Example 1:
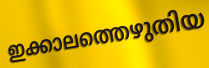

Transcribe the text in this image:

ഇക്കാലത്തെഴുതിയ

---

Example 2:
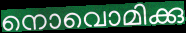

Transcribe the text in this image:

നൊവൊമിക്കു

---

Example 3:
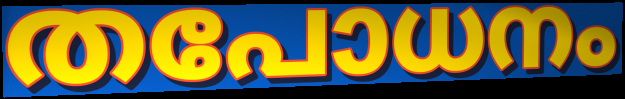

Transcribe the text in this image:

തപോധനം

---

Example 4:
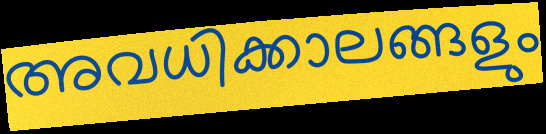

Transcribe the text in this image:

അവധിക്കാലങ്ങളും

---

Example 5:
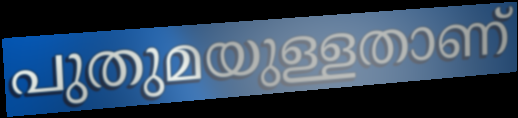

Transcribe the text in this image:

പുതുമയുള്ളതാണ്